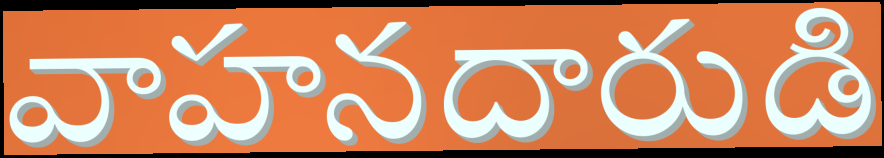
వాహనదారుడి